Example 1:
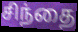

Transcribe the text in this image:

சிந்தை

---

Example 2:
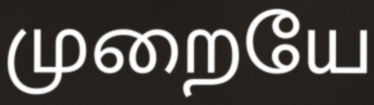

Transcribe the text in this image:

முறையே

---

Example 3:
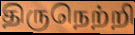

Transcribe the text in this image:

திருநெற்றி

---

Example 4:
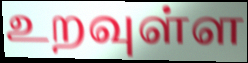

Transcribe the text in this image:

உறவுள்ள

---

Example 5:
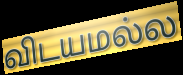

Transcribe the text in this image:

விடயமல்ல